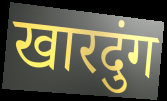
खारदुंग